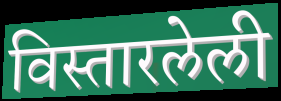
विस्तारलेली